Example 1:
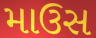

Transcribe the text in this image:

માઉસ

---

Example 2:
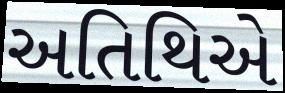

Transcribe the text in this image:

અતિથિએ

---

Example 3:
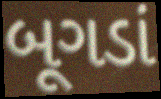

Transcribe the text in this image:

બૂગડાં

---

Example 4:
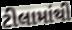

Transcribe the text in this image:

ટીલામાંથી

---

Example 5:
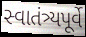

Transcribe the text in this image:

સ્વાતંત્ર્યપૂર્વે